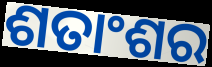
ଶତାଂଶର